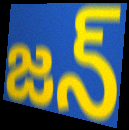
జన్